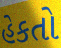
હેકતો